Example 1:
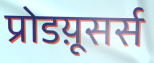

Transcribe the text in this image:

प्रोडय़ूसर्स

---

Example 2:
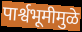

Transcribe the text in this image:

पार्श्वभूमीमुळे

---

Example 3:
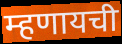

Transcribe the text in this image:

म्हणायची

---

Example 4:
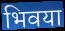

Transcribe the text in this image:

भिवया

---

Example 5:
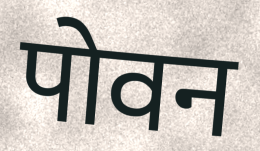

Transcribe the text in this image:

पोवन